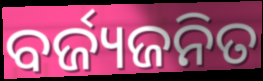
ବର୍ଜ୍ୟଜନିତ